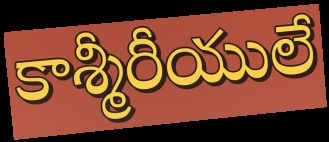
కాశ్మీరీయులే